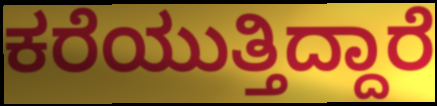
ಕರೆಯುತ್ತಿದ್ದಾರೆ